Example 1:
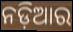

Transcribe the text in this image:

ନଡ଼ିଆର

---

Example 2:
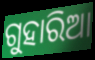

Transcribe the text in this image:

ଗୁହାରିଆ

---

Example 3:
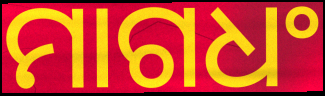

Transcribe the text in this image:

ମାଗଧଂ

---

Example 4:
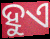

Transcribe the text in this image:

ହୁଏ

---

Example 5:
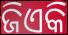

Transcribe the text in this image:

ଜିଏକି